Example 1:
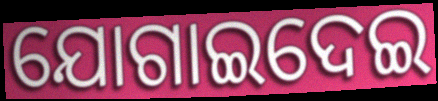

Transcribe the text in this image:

ଯୋଗାଇଦେଇ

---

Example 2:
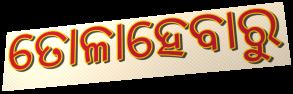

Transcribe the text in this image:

ତୋଳାହେବାରୁ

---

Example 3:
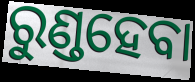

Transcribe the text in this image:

ରୁଣ୍ଡହେବା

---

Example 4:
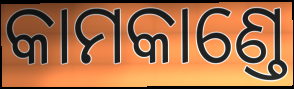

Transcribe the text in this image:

କାମକାଣ୍ଡେ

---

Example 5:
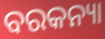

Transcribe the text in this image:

ବରକନ୍ୟା